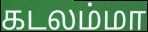
கடலம்மா